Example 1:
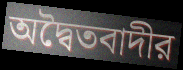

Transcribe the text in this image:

অদ্বৈতবাদীর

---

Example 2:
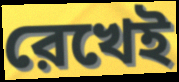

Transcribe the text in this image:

রেখেই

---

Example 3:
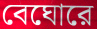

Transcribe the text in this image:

বেঘোরে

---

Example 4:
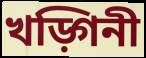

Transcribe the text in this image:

খড়্গিনী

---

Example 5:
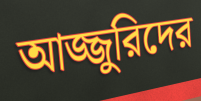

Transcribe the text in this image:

আজ্জুরিদের